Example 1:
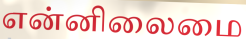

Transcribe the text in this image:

என்னிலைமை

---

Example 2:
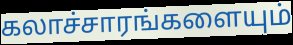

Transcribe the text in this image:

கலாச்சாரங்களையும்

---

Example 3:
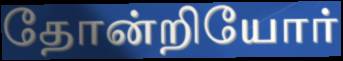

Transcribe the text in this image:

தோன்றியோர்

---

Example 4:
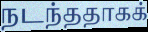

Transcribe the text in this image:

நடந்ததாகக்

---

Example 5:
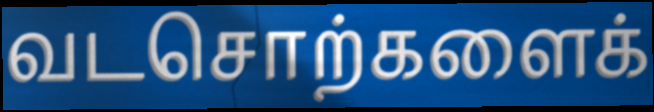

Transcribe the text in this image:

வடசொற்களைக்